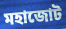
মহাজোট